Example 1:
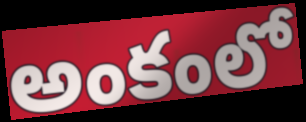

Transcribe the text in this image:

అంకంలో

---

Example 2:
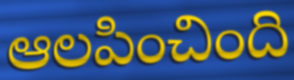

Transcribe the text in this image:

ఆలపించింది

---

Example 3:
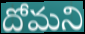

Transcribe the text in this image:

దోమని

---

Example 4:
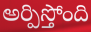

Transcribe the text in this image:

అర్పిస్తోంది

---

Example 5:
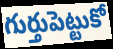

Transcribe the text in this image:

గుర్తుపెట్టుకో